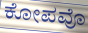
ಕೋಪವೊ